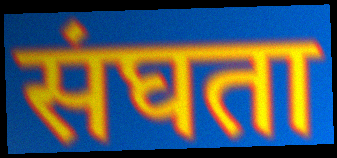
संघता